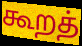
கூறத்